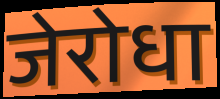
जेरोधा